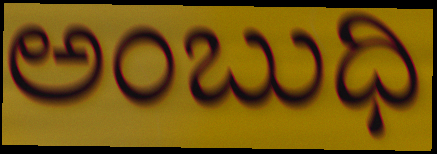
ಅಂಬುಧಿ